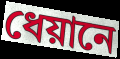
ধেয়ানে